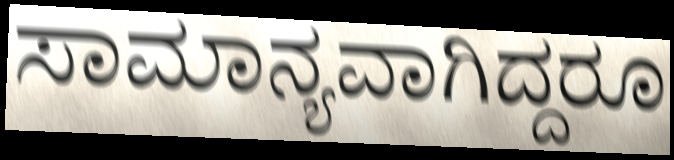
ಸಾಮಾನ್ಯವಾಗಿದ್ದರೂ